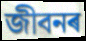
জীবনৰ